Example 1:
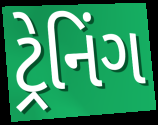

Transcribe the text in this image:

ટ્રેનિંગ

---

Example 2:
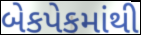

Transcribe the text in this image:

બેકપેકમાંથી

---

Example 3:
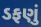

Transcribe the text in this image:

ડફણું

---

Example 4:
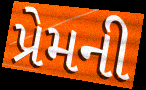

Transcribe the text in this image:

પ્રેમની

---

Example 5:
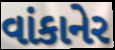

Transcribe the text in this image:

વાંકાનેર